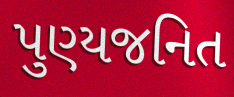
પુણ્યજનિત